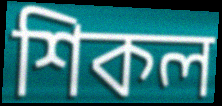
শিকল